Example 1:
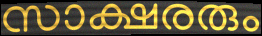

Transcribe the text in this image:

സാക്ഷരരും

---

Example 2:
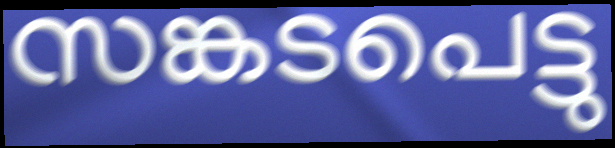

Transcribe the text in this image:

സങ്കടപെട്ടു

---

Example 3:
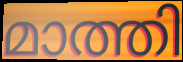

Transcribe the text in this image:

മാത്തി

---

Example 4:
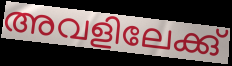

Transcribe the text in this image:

അവളിലേക്കു്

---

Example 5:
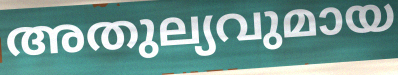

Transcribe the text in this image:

അതുല്യവുമായ